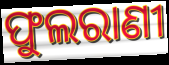
ଫୁଲରାଣୀ